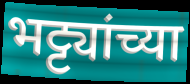
भट्ट्यांच्या